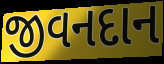
જીવનદાન